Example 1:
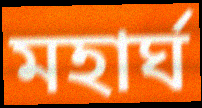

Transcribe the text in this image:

মহার্ঘ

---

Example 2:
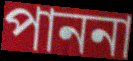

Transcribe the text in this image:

পাননা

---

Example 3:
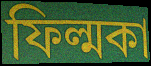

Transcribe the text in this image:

ফিল্মকা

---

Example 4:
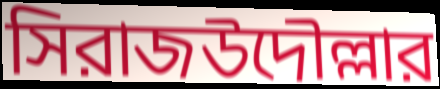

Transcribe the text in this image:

সিরাজউদৌল্লার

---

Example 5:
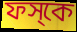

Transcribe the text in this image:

ফস্‌কে